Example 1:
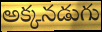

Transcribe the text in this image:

అక్కనడుగు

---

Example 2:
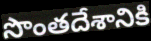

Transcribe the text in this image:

సొంతదేశానికి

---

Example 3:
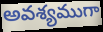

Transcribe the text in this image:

అవశ్యముగా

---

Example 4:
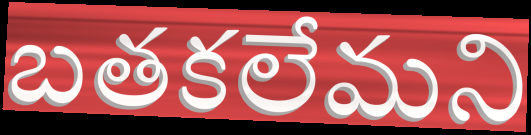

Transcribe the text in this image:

బతకలేమని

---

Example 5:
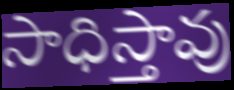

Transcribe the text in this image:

సాధిస్తావు